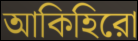
আকিহিরো